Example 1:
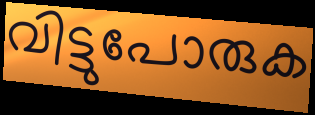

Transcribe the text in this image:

വിട്ടുപോരുക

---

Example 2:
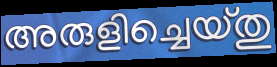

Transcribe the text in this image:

അരുളിച്ചെയ്തു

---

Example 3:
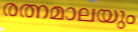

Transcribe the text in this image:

രത്നമാലയും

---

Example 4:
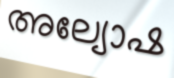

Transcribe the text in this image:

അല്യോഷ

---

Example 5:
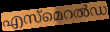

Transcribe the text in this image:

എസ്മെറൽഡ